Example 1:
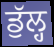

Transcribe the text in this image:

ਡੁੱਲ੍ਹ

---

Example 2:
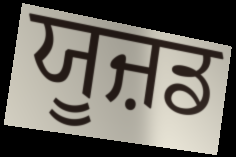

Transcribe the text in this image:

ਯੂਜ਼ਡ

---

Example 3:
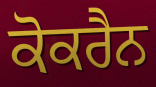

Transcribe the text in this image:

ਕੋਕਰੈਨ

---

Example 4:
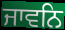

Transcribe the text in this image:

ਜਾਵਨਿ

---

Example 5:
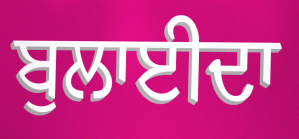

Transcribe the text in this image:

ਬੁਲਾਈਦਾ